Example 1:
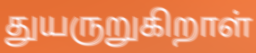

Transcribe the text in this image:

துயருறுகிறாள்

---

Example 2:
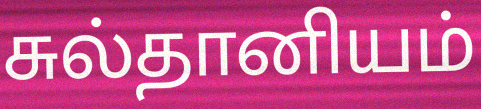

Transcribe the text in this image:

சுல்தானியம்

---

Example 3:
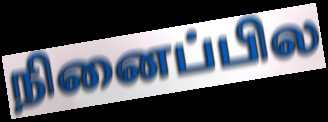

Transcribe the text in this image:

நினைப்பில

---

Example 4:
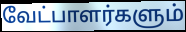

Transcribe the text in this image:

வேட்பாளர்களும்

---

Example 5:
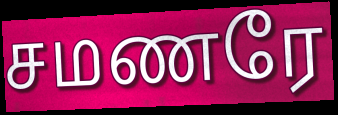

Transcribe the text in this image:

சமணரே